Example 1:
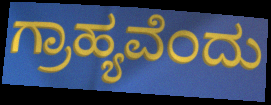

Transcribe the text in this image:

ಗ್ರಾಹ್ಯವೆಂದು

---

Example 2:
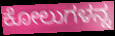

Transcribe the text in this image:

ಕೋಲುಗಳನ್ನ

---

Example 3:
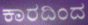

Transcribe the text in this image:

ಕಾರದಿಂದ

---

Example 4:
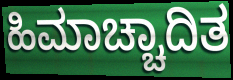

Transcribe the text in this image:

ಹಿಮಾಚ್ಚಾದಿತ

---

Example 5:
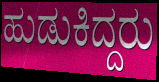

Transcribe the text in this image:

ಹುಡುಕಿದ್ದರು